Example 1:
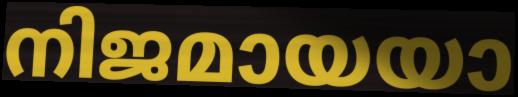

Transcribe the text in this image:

നിജമായയാ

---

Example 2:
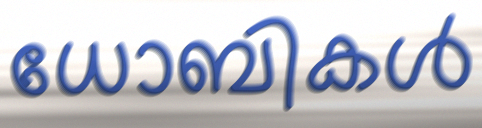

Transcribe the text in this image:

ധോബികൾ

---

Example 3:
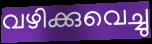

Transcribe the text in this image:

വഴിക്കുവെച്ചു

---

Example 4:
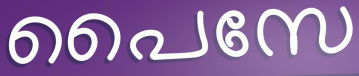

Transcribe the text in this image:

പൈസേ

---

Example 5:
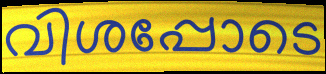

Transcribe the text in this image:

വിശപ്പോടെ